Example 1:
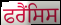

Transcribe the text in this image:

ਫਰੈਂਸਿਸ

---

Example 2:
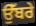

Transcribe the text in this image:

ਉੱਬਰੇ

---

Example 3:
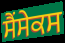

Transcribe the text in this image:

ਸੈਂਸੇਕਸ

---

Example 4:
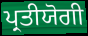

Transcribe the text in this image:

ਪ੍ਰਤੀਯੋਗੀ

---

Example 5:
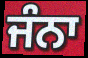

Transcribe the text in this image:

ਜੰਨਾ